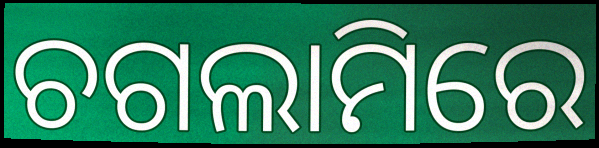
ଚଗଲାମିରେ